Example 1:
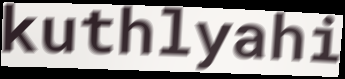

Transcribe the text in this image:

kuthlyahi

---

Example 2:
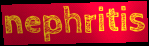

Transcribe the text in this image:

nephritis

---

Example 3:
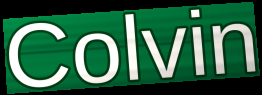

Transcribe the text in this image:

Colvin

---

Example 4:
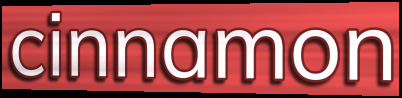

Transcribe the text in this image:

cinnamon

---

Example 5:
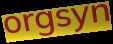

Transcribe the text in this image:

orgsyn